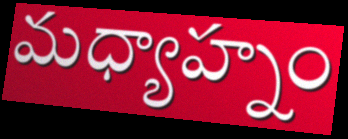
మధ్యాహ్నం